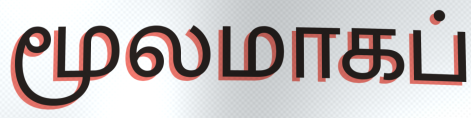
மூலமாகப்